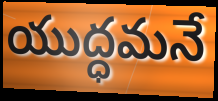
యుద్ధమనే